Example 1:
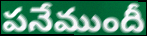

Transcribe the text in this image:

పనేముందీ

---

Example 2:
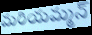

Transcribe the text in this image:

మరియమ్మన్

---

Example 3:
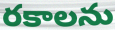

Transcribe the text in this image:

రకాలను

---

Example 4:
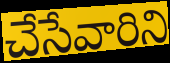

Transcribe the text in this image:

చేసేవారిని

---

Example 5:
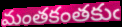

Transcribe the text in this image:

మంతకంతకుఁ